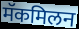
मॅकमिलन